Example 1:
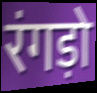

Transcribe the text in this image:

रंगड़ो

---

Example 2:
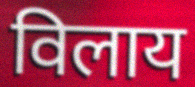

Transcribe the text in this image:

विलाय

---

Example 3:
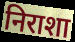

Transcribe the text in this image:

निराशा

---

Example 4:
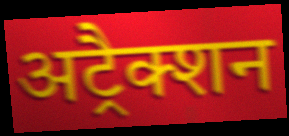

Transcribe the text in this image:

अट्रैक्शन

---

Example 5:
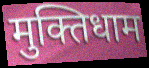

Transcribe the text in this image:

मुक्तिधाम